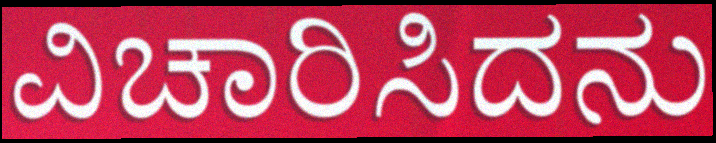
ವಿಚಾರಿಸಿದನು